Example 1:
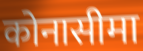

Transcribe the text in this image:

कोनासीमा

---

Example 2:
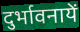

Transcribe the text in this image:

दुर्भावनायें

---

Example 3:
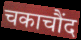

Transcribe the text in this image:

चकाचौंद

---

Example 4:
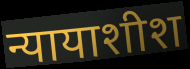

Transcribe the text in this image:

न्यायाशीश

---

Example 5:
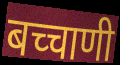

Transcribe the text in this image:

बच्चाणी